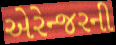
એરેન્જરની